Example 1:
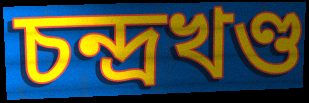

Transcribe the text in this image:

চন্দ্রখণ্ড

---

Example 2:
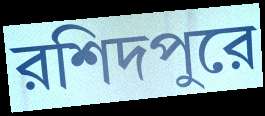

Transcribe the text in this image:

রশিদপুরে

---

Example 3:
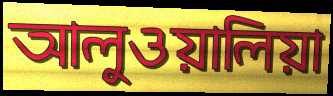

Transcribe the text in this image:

আলুওয়ালিয়া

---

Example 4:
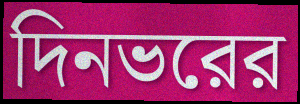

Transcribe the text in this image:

দিনভরের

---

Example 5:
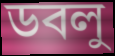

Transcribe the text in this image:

ডবলু